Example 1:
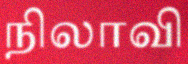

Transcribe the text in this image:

நிலாவி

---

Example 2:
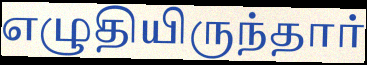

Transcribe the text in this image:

எழுதியிருந்தார்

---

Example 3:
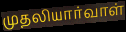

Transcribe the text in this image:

முதலியார்வாள்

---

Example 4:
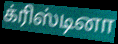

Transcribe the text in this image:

க்ரிஸ்டினா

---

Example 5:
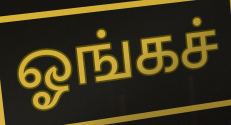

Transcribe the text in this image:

ஓங்கச்